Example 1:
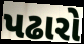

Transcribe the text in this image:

પઢારો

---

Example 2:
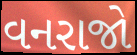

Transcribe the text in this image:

વનરાજો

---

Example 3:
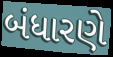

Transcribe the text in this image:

બંધારણે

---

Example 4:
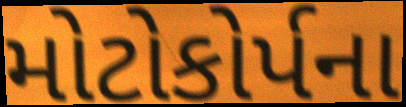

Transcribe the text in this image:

મોટોકોર્પના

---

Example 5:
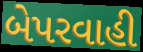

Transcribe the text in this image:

બેપરવાહી